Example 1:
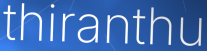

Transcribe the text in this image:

thiranthu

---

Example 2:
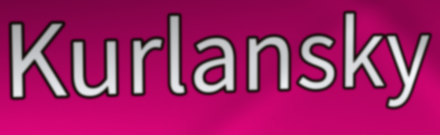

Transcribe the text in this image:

Kurlansky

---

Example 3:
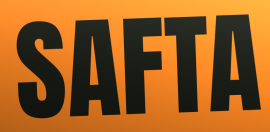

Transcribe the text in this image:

SAFTA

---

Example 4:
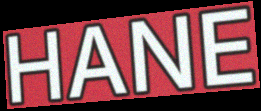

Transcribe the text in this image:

HANE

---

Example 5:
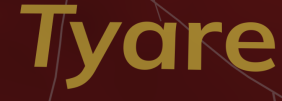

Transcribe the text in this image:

Tyare